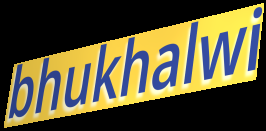
bhukhalwi